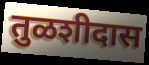
तुळशीदास